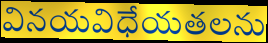
వినయవిధేయతలను